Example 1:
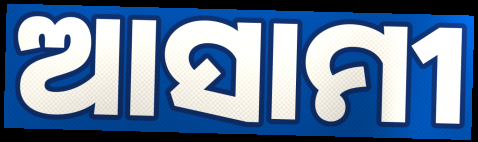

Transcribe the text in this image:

ଆସାମୀ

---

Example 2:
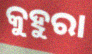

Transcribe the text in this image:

କୁହୁରା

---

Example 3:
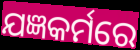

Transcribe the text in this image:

ଯଜ୍ଞକର୍ମରେ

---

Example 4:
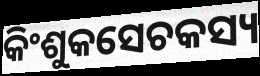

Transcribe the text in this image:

କିଂଶୁକସେଚକସ୍ୟ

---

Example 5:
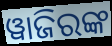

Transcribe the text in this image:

ୱାଜିରଙ୍କ